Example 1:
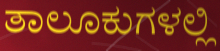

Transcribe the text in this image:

ತಾಲೂಕುಗಳಲ್ಲಿ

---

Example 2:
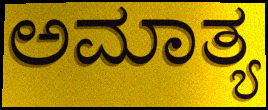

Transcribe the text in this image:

ಅಮಾತ್ಯ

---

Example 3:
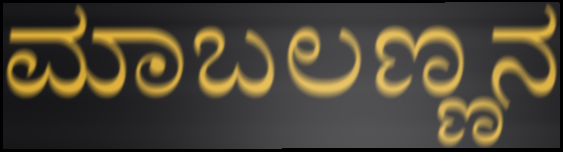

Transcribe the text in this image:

ಮಾಬಲಣ್ಣನ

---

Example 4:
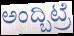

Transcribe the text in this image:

ಅಂದ್ಬಿಟ್ರೆ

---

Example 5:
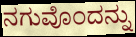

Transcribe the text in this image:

ನಗುವೊಂದನ್ನು